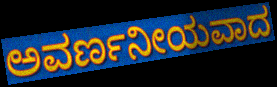
ಅವರ್ಣನೀಯವಾದ